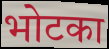
भोटका